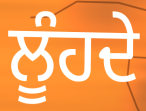
ਲੂੰਹਦੇ